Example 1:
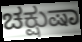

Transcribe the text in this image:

ಚಕ್ಷುಷಾ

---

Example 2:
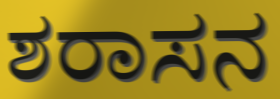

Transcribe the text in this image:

ಶರಾಸನ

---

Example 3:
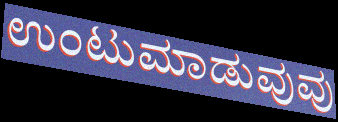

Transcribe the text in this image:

ಉಂಟುಮಾಡುವುವು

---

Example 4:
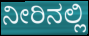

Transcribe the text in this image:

ನೀರಿನಲ್ಲಿ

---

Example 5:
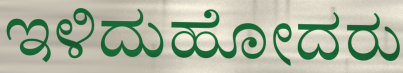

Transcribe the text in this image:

ಇಳಿದುಹೋದರು